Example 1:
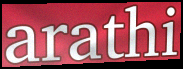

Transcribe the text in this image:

arathi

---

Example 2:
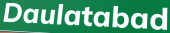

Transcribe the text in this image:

Daulatabad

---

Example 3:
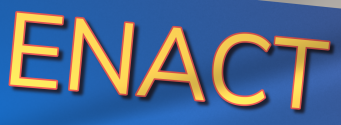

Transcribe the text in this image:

ENACT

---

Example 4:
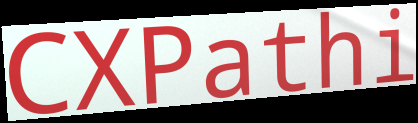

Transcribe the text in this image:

CXPathi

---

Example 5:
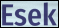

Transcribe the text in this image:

Esek